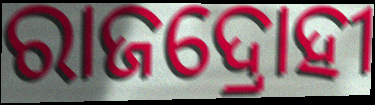
ରାଜଦ୍ରୋହୀ